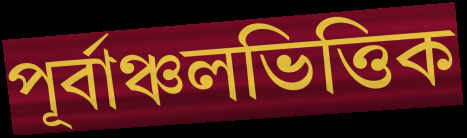
পূর্বাঞ্চলভিত্তিক